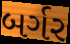
બર્ગર